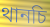
থানচি